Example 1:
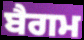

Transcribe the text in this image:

ਬੈਗਮ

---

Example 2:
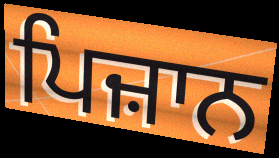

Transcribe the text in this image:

ਪਿਜ਼ਾਨ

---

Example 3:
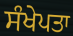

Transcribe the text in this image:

ਸੰਖੇਪਤਾ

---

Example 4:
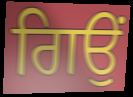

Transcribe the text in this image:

ਗਿਉਂ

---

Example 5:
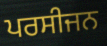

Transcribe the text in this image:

ਪਰਸੀਜਨ